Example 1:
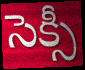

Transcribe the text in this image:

సెక్సీ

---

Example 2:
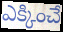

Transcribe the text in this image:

ఎక్కించే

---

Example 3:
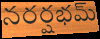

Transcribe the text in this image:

నరర్షభమ్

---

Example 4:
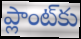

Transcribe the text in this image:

ప్లాంట్‌కు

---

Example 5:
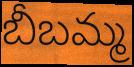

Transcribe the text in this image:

బీబమ్మ